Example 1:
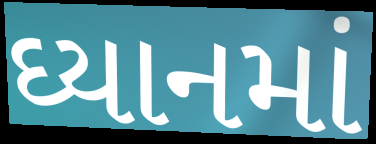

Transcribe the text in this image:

ઘ્યાનમાં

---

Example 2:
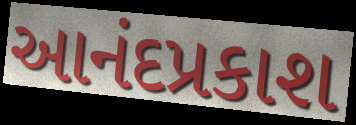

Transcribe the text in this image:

આનંદપ્રકાશ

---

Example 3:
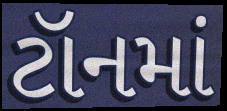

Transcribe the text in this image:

ટૉનમાં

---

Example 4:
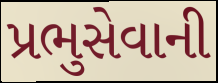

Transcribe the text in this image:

પ્રભુસેવાની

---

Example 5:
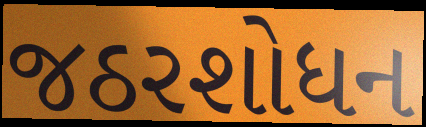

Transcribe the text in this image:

જઠરશોધન